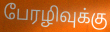
பேரழிவுக்கு